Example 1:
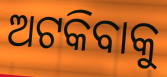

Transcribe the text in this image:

ଅଟକିବାକୁ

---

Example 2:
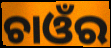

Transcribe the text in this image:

ଚାଓଁର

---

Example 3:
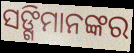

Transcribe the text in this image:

ସଙ୍ଗିମାନଙ୍କର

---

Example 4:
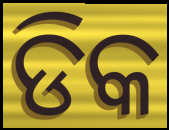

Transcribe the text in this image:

ଡିକ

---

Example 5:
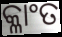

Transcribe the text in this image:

କ୍ଳାଂତ